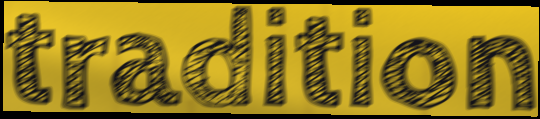
tradition